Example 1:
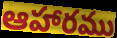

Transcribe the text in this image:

ఆహారము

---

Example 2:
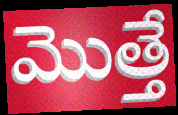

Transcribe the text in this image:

మొత్తే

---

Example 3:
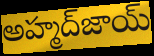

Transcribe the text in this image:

అహ్మద్‌జాయ్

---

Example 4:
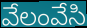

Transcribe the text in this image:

వేలంవేసి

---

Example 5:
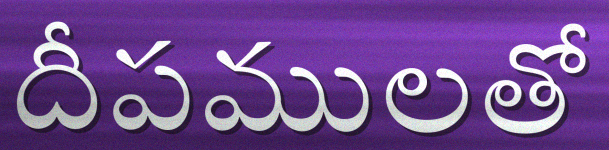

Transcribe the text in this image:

దీపములతో